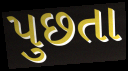
પુછતા